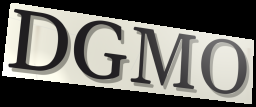
DGMO